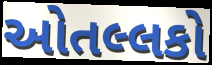
ઓતલ્લકો